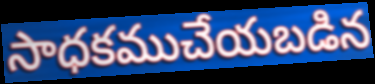
సాధకముచేయబడిన